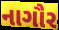
નાગૌર